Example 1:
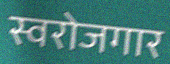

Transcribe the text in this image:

स्‍वरोजगार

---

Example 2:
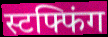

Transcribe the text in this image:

स्टफ्फिंग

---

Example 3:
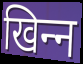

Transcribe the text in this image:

खिन्‍न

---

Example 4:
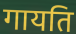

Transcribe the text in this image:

गायति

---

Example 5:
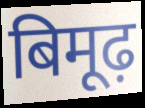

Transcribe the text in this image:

बिमूढ़